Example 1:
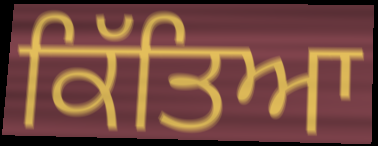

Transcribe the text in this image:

ਕਿੱਤਿਆ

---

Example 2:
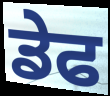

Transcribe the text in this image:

ਡੇਫ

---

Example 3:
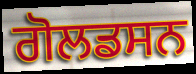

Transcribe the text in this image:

ਗੋਲਡਸਨ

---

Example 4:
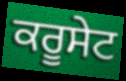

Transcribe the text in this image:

ਕਰੂਸੇਟ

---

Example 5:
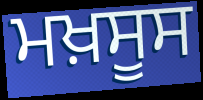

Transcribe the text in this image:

ਮਖ਼ਸੂਸ